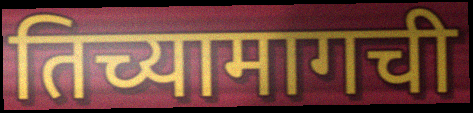
तिच्यामागची